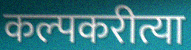
कल्पकरीत्या